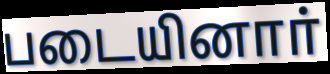
படையினார்